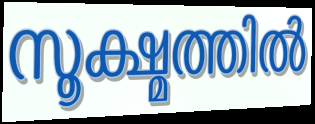
സൂക്ഷ്മത്തിൽ